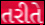
તરીતે